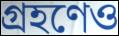
গ্রহণেও